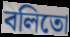
বলিতো